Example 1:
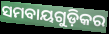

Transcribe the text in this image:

ସମବାୟଗୁଡ଼ିକର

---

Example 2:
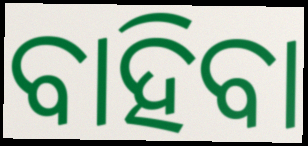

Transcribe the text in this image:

ବାହିବା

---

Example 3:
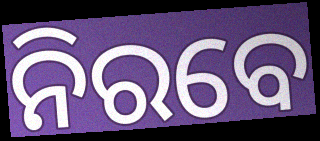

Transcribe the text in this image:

ନିରବେ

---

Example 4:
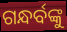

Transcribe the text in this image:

ଗନ୍ଧର୍ବଙ୍କୁ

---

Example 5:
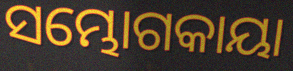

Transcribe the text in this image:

ସମ୍ଭୋଗକାୟା